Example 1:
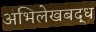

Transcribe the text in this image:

अभिलेखबद्ध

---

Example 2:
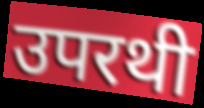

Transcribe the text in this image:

उपरथी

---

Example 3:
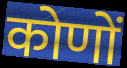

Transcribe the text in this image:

कोणों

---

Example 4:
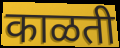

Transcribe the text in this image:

काळती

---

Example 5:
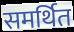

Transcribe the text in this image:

समर्थित